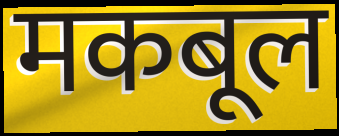
मकबूल